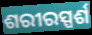
ଶରୀରସ୍ପର୍ଶ